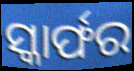
ସ୍କାର୍ଫର